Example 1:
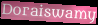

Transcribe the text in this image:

Doraiswamy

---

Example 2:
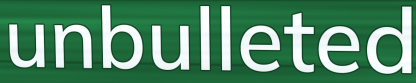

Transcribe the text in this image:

unbulleted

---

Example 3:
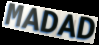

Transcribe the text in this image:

MADAD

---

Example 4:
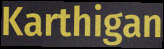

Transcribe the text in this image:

Karthigan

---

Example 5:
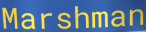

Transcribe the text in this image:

Marshman